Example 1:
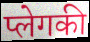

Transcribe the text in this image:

प्लेगकी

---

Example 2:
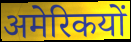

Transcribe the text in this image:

अमेरिकयों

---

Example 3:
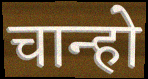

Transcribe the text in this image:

चान्हो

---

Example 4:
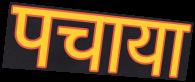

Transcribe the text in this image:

पचाया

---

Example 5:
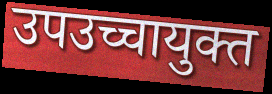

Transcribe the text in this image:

उपउच्चायुक्त